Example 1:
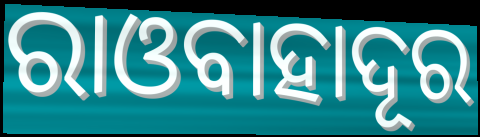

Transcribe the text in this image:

ରାଓବାହାଦୂର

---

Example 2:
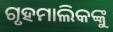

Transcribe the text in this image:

ଗୃହମାଲିକଙ୍କୁ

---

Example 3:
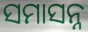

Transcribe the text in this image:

ସମାସନ୍ନ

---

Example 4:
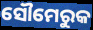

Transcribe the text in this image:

ସୌମେରୁକ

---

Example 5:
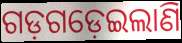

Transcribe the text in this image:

ଗଡ଼ଗଡ଼େଇଲାଣି